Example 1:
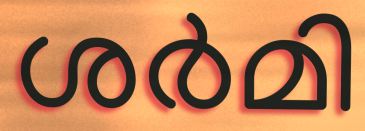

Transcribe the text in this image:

ശർമി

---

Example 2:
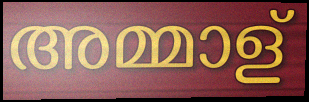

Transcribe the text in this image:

അമ്മാള്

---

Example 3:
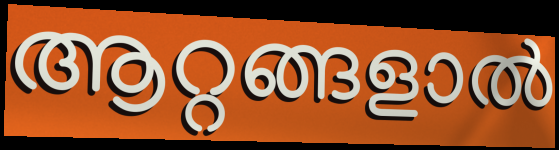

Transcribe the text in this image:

ആറ്റങ്ങളാൽ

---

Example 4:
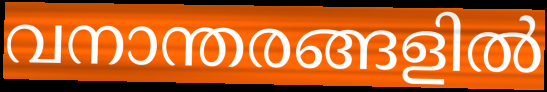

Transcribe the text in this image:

വനാന്തരങ്ങളിൽ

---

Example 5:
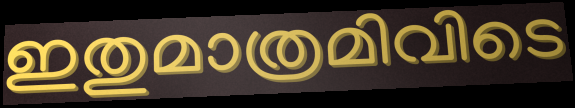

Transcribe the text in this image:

ഇതുമാത്രമിവിടെ